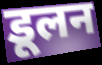
डूलन